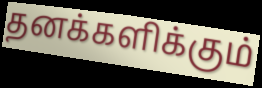
தனக்களிக்கும்